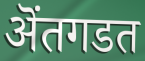
ऄंतगडत